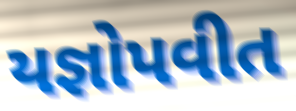
યજ્ઞોપવીત